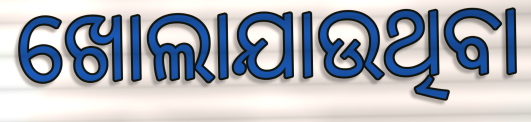
ଖୋଲାଯାଉଥିବା